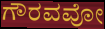
ಗೌರವವೋ